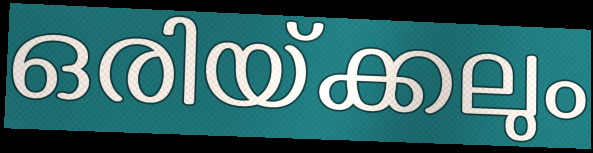
ഒരിയ്‌ക്കലും